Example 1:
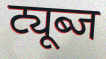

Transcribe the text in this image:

ट्यूब्ज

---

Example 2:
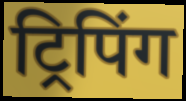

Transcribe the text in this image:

ट्रिपिंग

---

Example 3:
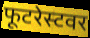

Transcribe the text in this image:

फूटरेस्टवर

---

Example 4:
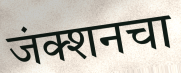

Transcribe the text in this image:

जंक्‍शनचा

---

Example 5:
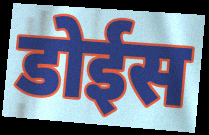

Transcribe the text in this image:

डोईस